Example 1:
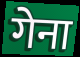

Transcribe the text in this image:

गेना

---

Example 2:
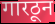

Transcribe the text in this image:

गारठून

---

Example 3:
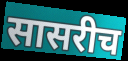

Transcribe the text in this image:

सासरीच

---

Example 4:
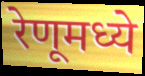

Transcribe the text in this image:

रेणूमध्ये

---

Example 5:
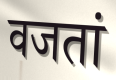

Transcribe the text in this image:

वजतां